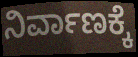
ನಿರ್ವಾಣಕ್ಕೆ